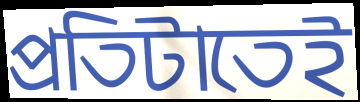
প্রতিটাতেই